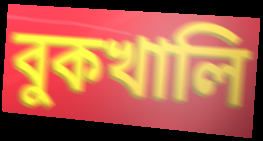
বুকখালি